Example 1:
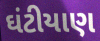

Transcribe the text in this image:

ઘંટીયાણ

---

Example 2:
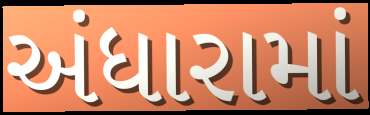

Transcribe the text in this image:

અંધારામાં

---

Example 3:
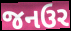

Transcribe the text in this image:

જનઉર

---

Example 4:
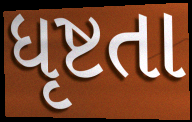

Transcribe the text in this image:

ધૃષ્ટતા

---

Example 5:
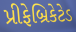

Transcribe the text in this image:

પ્રીફેબ્રિકેટેડ